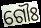
ଗୌଃ